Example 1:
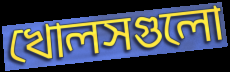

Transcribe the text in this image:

খোলসগুলো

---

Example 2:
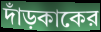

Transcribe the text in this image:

দাঁড়কাকের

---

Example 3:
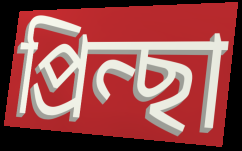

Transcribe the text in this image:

প্রিন্ছা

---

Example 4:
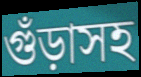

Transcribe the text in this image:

গুঁড়াসহ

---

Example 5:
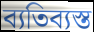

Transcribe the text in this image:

ব্যতিব্যস্ত